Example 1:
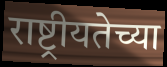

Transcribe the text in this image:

राष्ट्रीयतेच्या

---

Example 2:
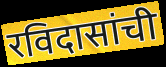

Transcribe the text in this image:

रविदासांची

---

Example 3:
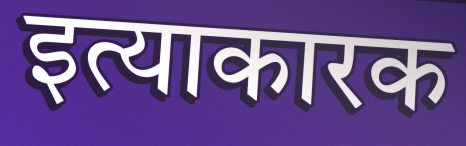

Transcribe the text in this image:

इत्याकारक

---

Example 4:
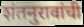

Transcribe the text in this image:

शंतनुरावांची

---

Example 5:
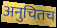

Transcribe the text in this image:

अनुचितच